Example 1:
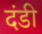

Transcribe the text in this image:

दंडी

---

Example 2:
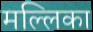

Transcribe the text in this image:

मल्लिका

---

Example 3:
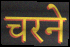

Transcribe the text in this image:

चरने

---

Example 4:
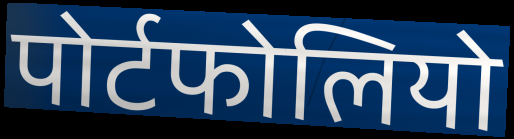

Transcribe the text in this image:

पोर्टफोलियो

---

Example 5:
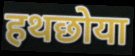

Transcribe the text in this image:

हथछोया